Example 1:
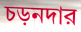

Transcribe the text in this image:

চড়নদার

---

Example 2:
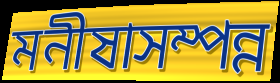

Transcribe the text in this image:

মনীষাসম্পন্ন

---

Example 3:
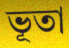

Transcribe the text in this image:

ভূতা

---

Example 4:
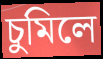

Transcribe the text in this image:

চুমিলে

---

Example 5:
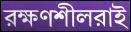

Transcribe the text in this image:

রক্ষণশীলরাই